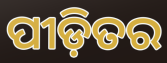
ପୀଡ଼ିତର